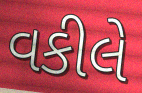
વકીલે